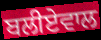
ਬਲੀਏਵਾਲ